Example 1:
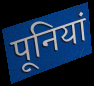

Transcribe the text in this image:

पूनियां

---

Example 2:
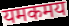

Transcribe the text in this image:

यमकमय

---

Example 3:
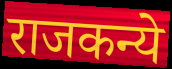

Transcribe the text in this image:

राजकन्ये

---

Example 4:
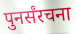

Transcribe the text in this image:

पुनर्संरचना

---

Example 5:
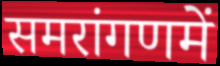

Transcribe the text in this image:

समरांगणमें